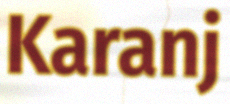
Karanj